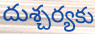
దుశ్చర్యకు